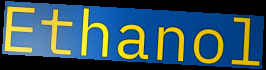
Ethanol